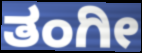
ತಂಗೀ